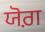
ਯੋਗ਼